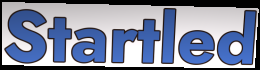
Startled